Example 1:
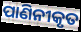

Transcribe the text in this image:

ପାଣିନୀକୃତ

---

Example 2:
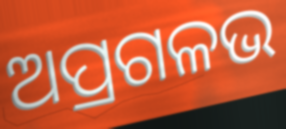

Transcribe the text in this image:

ଅପ୍ରଗଳଭ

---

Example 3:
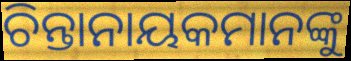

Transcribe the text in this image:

ଚିନ୍ତାନାୟକମାନଙ୍କୁ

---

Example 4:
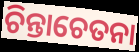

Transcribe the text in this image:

ଚିନ୍ତାଚେତନା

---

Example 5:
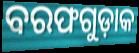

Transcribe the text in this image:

ବରଫଗୁଡ଼ାକ